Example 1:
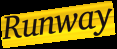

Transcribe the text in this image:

Runway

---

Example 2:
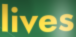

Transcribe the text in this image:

lives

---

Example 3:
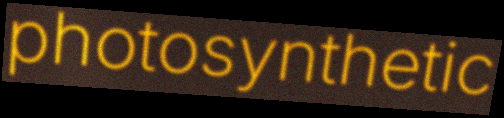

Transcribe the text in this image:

photosynthetic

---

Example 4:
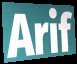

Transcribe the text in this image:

Arif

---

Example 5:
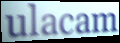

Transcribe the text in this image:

ulacam